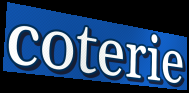
coterie